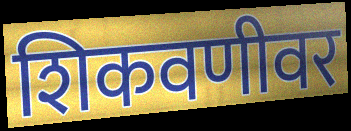
शिकवणीवर